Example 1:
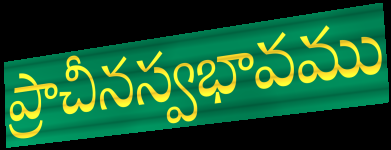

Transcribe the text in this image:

ప్రాచీనస్వభావము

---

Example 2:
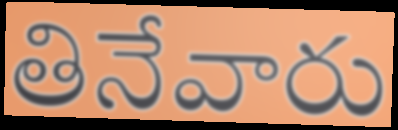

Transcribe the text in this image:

తినేవారు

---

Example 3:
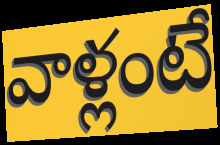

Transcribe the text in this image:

వాళ్లంటే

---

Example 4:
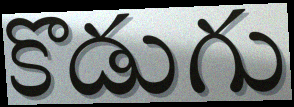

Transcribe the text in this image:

కొడుగు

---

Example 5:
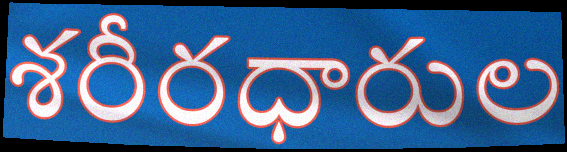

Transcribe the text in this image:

శరీరధారుల